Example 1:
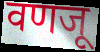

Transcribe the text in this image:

वणजू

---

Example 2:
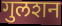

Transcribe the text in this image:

गुलशन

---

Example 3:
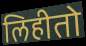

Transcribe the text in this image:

लिहीतो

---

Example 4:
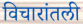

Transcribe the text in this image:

विचारांतली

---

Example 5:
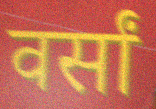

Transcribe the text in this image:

वर्सां